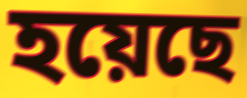
হয়েছে